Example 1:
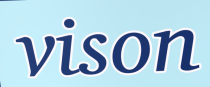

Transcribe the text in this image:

vison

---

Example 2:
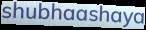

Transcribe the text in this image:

shubhaashaya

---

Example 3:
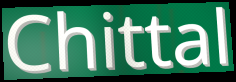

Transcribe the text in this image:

Chittal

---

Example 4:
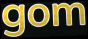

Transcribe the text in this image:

gom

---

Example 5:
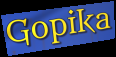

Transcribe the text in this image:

Gopika